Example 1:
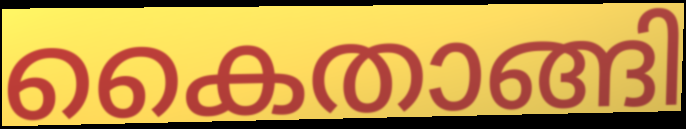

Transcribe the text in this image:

കൈതാങ്ങി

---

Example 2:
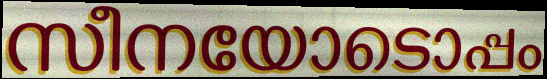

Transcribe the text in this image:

സീനയോടൊപ്പം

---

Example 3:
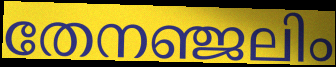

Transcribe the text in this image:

തേനഞ്ജലിം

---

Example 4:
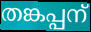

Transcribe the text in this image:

തങ്കപ്പന്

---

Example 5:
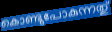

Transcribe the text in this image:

കൊണ്ടുപോകുന്നതു്